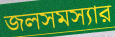
জলসমস্যার